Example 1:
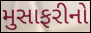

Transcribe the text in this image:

મુસાફરીનો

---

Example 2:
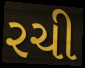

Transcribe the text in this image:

રચી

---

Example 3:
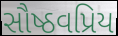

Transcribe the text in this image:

સૌષ્ઠવપ્રિય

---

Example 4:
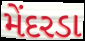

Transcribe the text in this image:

મેંદરડા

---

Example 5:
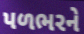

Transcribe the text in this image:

પળભરને